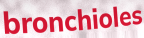
bronchioles